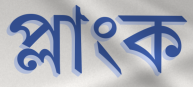
প্লাংক